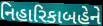
નિહારિકાબહેને